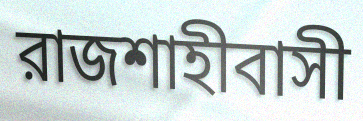
রাজশাহীবাসী